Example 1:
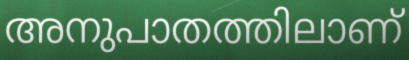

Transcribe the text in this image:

അനുപാതത്തിലാണ്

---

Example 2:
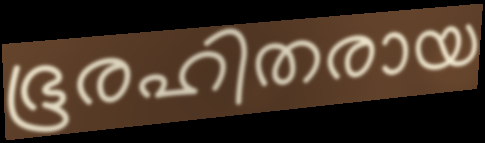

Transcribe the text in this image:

ഭൂരഹിതരായ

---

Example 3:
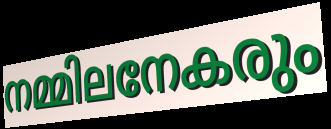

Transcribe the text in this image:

നമ്മിലനേകരും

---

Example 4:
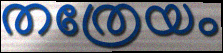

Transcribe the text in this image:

തത്രേയം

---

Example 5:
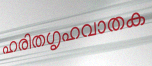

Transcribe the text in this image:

ഹരിതഗൃഹവാതക